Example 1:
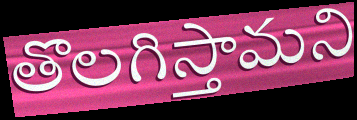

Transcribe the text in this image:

తొలగిస్తామని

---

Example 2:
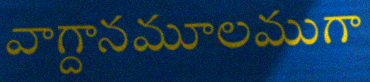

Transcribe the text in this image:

వాగ్దానమూలముగా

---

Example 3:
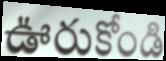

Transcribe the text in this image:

ఊరుకోండి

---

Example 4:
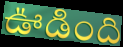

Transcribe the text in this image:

ఊడింది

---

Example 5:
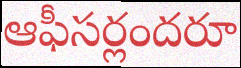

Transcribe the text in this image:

ఆఫీసర్లందరూ